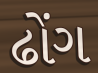
ઢોંગ